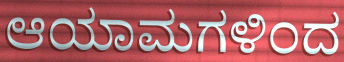
ಆಯಾಮಗಳಿಂದ